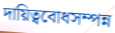
দায়িত্ববোধসম্পন্ন